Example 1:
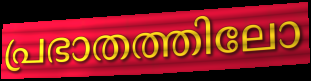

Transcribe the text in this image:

പ്രഭാതത്തിലോ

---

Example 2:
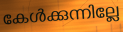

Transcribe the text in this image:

കേൾക്കുന്നില്ലേ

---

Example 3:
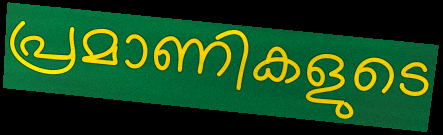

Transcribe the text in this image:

പ്രമാണികളുടെ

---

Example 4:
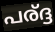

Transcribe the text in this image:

പര്ദ്ദ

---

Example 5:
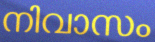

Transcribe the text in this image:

നിവാസം